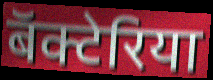
बॅक्टेरिया